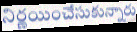
నిర్ణయించేసుకున్నారు